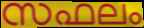
സഫലം